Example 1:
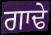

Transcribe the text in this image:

ਗਾਢੇ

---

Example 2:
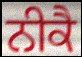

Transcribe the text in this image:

ਨੀਕੈ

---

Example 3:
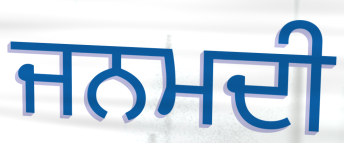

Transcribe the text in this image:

ਜਨਮਦੀ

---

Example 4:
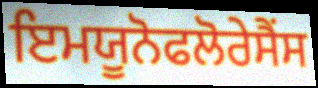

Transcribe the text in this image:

ਇਮਯੂਨੋਫਲੋਰੇਸੈਂਸ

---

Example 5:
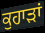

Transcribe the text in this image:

ਕੁਹਾੜਾਂ